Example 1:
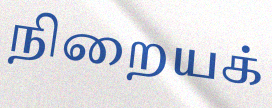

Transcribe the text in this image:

நிறையக்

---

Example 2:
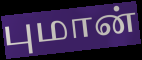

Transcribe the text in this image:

புமான்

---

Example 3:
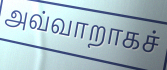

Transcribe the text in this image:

அவ்வாறாகச்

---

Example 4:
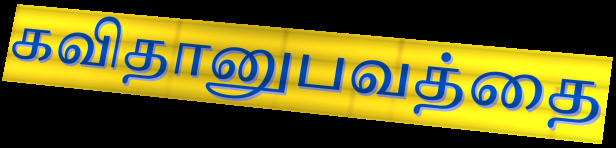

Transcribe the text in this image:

கவிதானுபவத்தை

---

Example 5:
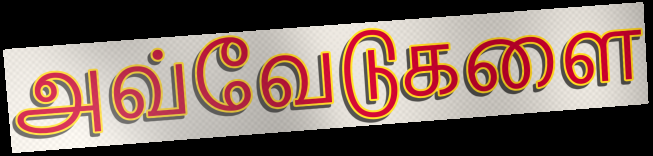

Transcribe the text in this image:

அவ்வேடுகளை